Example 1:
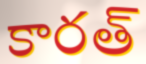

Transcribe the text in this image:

కారత్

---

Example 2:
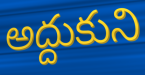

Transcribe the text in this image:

అద్దుకుని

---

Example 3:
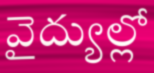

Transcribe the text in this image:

వైద్యుల్లో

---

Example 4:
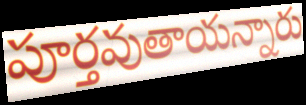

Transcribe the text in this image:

పూర్తవుతాయన్నారు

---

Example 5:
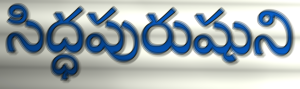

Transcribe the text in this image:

సిద్ధపురుషుని